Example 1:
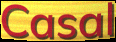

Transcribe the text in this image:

Casal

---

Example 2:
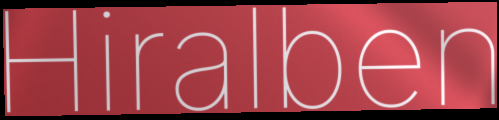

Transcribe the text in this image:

Hiralben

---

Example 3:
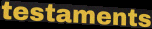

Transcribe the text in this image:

testaments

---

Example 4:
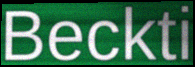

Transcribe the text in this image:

Beckti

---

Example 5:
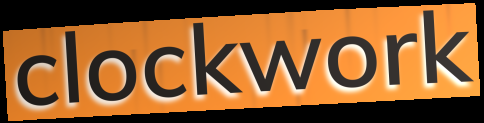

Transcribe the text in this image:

clockwork